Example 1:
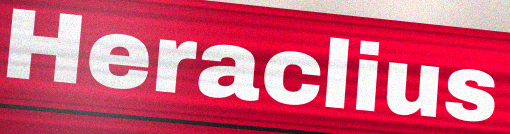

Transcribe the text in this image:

Heraclius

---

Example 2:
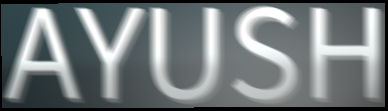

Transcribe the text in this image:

AYUSH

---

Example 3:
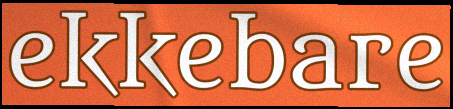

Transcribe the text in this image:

ekkebare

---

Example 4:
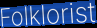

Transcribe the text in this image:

Folklorist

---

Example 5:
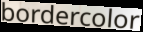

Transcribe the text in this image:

bordercolor